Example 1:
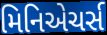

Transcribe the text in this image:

મિનિએચર્સ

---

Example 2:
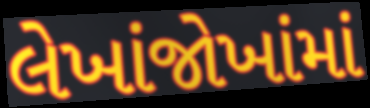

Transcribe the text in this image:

લેખાંજોખાંમાં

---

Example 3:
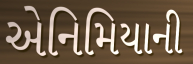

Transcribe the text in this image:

એનિમિયાની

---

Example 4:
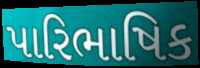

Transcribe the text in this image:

પારિભાષિક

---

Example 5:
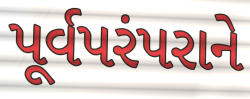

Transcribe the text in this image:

પૂર્વપરંપરાને